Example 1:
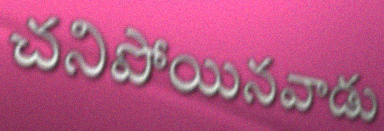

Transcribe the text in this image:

చనిపోయినవాడు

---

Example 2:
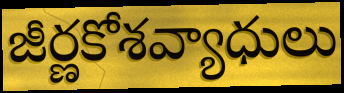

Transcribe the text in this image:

జీర్ణకోశవ్యాధులు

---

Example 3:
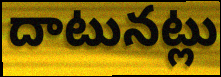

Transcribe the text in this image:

దాటునట్లు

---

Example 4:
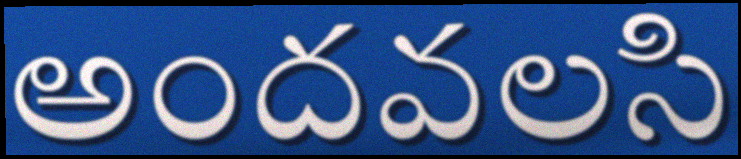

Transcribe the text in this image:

అందవలసి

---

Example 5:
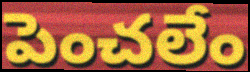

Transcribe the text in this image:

పెంచలేం